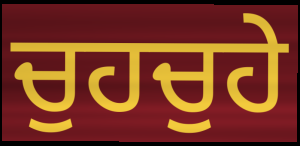
ਚੁਹਚੁਹੇ